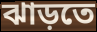
ঝাড়তে